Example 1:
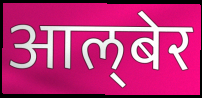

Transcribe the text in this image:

आल्बेर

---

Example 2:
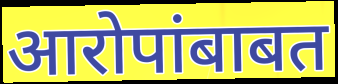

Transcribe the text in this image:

आरोपांबाबत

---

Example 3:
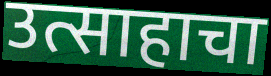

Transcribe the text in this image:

उत्साहाचा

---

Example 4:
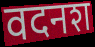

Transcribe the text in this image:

वदनश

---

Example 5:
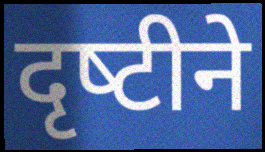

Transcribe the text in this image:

दृष्‍टीने